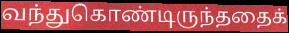
வந்துகொண்டிருந்ததைக்